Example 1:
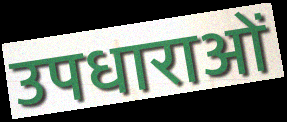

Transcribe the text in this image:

उपधाराओं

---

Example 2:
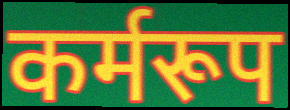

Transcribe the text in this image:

कर्मरूप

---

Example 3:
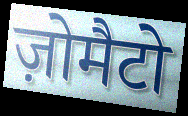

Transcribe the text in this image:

ज़ोमैटो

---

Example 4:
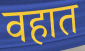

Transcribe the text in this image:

वहात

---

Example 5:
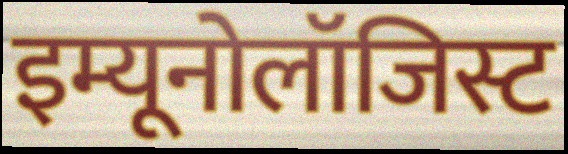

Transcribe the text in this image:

इम्यूनोलॉजिस्ट